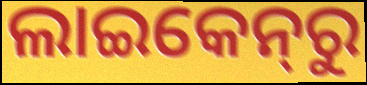
ଲାଇକେନ୍‌ରୁ